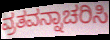
ವ್ರತವನ್ನಾಚರಿಸಿ